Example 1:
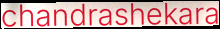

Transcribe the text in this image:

chandrashekara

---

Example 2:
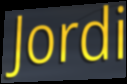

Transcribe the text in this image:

Jordi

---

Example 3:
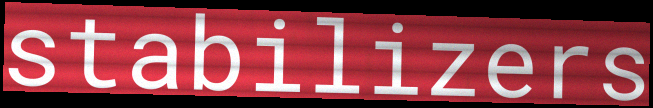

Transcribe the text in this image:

stabilizers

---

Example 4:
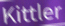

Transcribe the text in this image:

Kittler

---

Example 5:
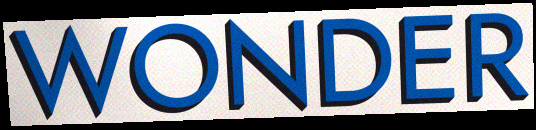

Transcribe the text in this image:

WONDER